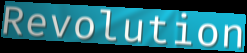
Revolution